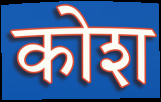
कोश